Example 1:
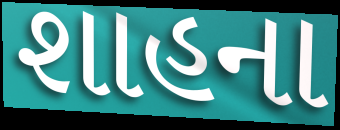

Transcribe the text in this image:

શાહના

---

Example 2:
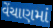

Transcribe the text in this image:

વેંચાણમાં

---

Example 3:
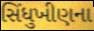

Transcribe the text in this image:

સિંધુખીણના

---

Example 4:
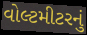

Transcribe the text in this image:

વોલ્ટમીટરનું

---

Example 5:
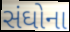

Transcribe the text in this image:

સંઘોના